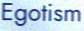
Egotism